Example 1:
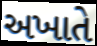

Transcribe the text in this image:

અખાતે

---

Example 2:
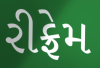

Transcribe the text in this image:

રીફ્રેમ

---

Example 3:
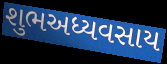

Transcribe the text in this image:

શુભઅધ્યવસાય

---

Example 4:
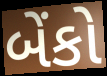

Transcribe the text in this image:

બેંકો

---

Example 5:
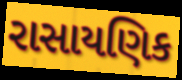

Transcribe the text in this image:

રાસાયણિક